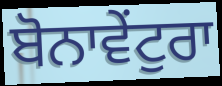
ਬੋਨਾਵੇਂਟੁਰਾ